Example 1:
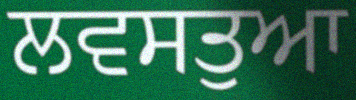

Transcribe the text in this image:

ਲਵਸਤੁਆ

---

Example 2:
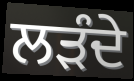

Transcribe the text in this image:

ਲੜੰਦੇ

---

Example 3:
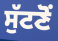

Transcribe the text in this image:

ਸੁੱਟਣੋਂ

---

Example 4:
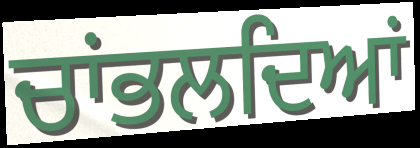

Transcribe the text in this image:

ਚਾਂਭਲਦਿਆਂ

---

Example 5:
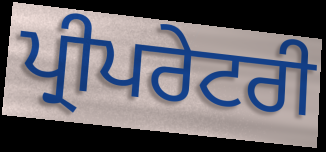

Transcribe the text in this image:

ਪ੍ਰੀਪਰੇਟਰੀ